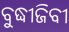
ବୁଦ୍ଧୀଜିବୀ